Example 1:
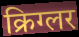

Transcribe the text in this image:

क्रिग्लर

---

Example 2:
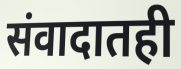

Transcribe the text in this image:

संवादातही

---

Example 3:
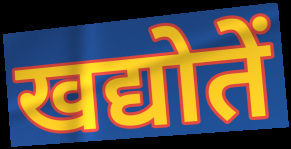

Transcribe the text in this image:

खद्योतें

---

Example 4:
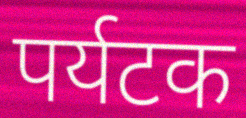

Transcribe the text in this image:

पर्यटक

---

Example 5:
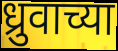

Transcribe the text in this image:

ध्रुवाच्या